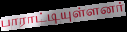
பாராட்டியுள்ளனர்